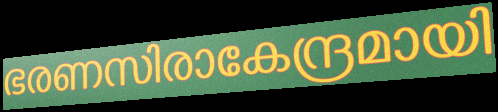
ഭരണസിരാകേന്ദ്രമായി